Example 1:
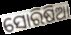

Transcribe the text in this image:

ସୋରିଷିଆ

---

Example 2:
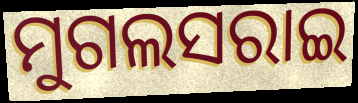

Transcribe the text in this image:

ମୁଗଲସରାଇ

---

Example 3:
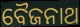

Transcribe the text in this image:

ବୈଜନାଥ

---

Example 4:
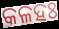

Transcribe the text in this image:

କଳହଃ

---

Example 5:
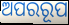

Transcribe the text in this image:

ଅପରରୂପ